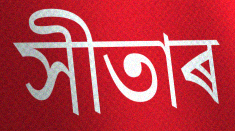
সীতাৰ